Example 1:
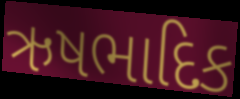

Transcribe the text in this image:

ઋષભાદિક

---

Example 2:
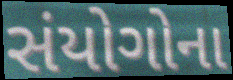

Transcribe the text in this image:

સંયોગોના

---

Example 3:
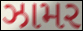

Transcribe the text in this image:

ઝામર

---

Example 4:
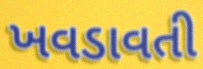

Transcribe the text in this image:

ખવડાવતી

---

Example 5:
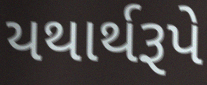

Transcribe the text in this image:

યથાર્થરૂપે